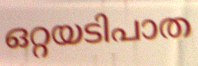
ഒറ്റയടിപാത